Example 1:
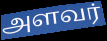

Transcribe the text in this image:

அளவர்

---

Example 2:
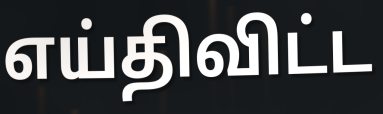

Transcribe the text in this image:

எய்திவிட்ட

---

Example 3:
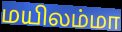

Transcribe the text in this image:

மயிலம்மா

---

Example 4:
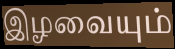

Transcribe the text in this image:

இழவையும்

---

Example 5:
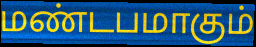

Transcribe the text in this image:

மண்டபமாகும்